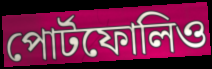
পোর্টফোলিও